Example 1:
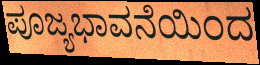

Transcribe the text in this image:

ಪೂಜ್ಯಭಾವನೆಯಿಂದ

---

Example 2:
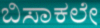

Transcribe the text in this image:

ಬಿಸಾಕಲೇ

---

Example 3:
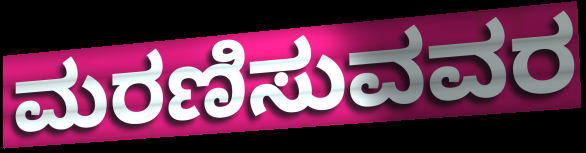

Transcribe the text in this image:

ಮರಣಿಸುವವರ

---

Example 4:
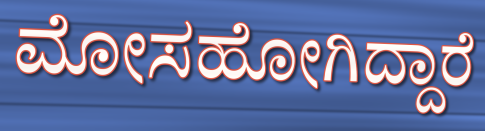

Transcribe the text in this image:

ಮೋಸಹೋಗಿದ್ದಾರೆ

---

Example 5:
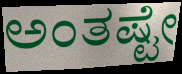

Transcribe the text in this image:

ಅಂತಷ್ಟೇ